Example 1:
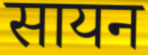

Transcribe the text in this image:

सायन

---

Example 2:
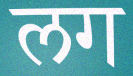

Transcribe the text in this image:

लग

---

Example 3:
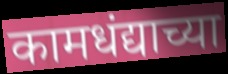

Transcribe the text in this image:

कामधंद्याच्या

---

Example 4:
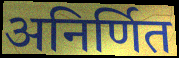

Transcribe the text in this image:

अनिर्णित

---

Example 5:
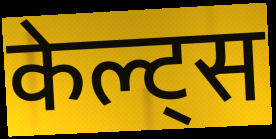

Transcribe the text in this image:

केल्ट्स